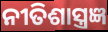
ନୀତିଶାସ୍ତ୍ରଜ୍ଞ